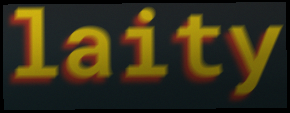
laity